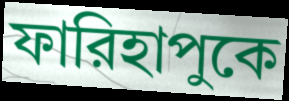
ফারিহাপুকে